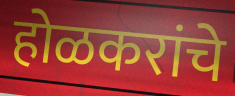
होळकरांचे